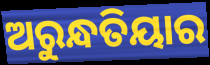
ଅରୁନ୍ଧତିୟାର